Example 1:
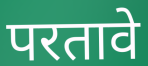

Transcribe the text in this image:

परतावे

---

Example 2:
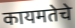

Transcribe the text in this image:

कायमतेचे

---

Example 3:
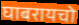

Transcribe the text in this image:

घाबरायचो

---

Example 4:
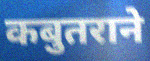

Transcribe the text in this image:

कबुतराने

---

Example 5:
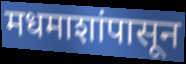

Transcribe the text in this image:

मधमाशांपासून